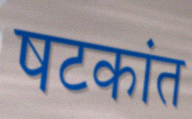
षटकांत